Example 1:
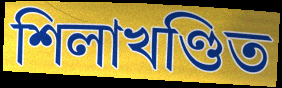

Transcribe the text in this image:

শিলাখণ্ডিত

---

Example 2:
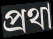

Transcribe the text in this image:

প্ৰথা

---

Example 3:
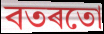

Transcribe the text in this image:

বতৰতো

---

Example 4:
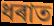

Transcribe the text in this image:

ধৰাত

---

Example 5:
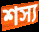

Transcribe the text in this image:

শস্য